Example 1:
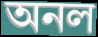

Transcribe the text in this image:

অনল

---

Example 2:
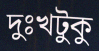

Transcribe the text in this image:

দুঃখটুকু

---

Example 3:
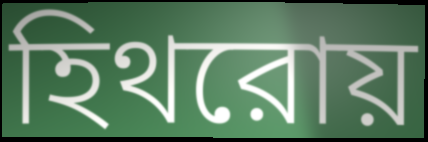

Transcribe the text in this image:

হিথরোয়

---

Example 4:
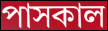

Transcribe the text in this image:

পাসকাল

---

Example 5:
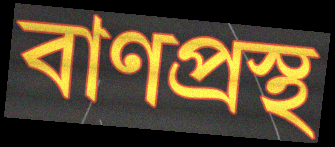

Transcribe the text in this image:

বাণপ্রস্থ